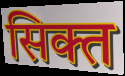
सिक्त